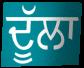
ਦੂੱਲਾ